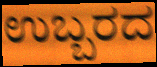
ಉಬ್ಬರದ